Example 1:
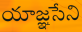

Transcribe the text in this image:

యాజ్ఞసేని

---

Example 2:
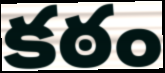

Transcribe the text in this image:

కఠం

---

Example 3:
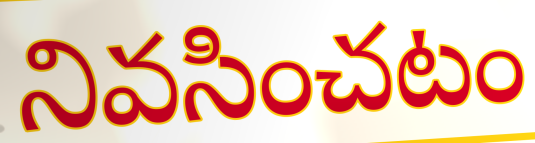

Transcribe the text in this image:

నివసించటం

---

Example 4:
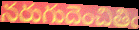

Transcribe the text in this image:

నరుగుదెంచితిఁ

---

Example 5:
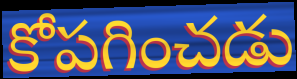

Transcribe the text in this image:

కోపగించడు